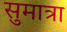
सुमात्रा